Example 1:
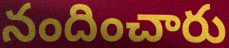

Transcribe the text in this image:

నందించారు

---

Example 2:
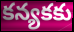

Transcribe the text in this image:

కన్యకకు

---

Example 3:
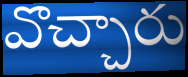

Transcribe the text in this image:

వొచ్చారు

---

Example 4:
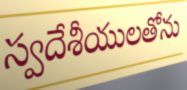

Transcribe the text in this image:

స్వదేశీయులతోను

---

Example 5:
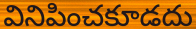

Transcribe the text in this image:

వినిపించకూడదు